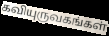
கவியுருவகங்கள்